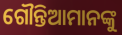
ଗୌନ୍ତିଆମାନଙ୍କୁ